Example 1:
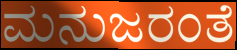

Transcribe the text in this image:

ಮನುಜರಂತೆ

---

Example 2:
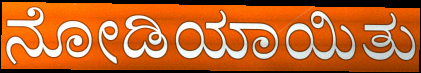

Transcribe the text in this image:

ನೋಡಿಯಾಯಿತು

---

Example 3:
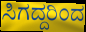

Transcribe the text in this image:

ಸಿಗದ್ದರಿಂದ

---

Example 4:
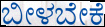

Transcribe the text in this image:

ಬೀಳಬೇಕೆ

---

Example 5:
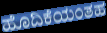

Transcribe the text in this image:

ಹೊದಿಕೆಯಂತಹ